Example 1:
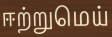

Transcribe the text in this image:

ஈற்றுமெய்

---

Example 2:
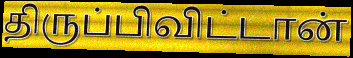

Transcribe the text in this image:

திருப்பிவிட்டான்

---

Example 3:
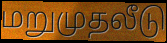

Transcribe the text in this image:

மறுமுதலீடு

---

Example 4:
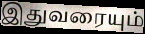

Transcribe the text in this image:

இதுவரையும்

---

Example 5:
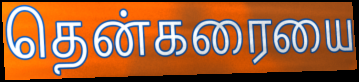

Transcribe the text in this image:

தென்கரையை